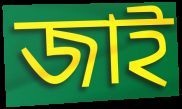
জাই